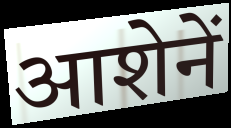
आशेनें